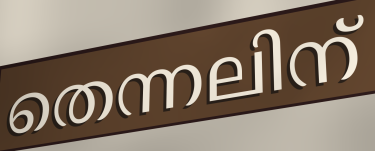
തെന്നലിന്